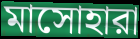
মাসোহারা